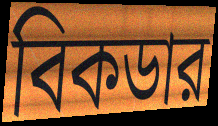
বিকডার